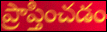
ప్రాప్తించడం